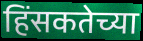
हिंसकतेच्या